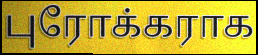
புரோக்கராக